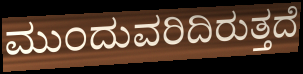
ಮುಂದುವರಿದಿರುತ್ತದೆ